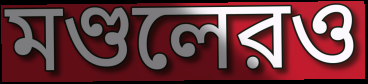
মণ্ডলেরও